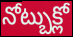
నోట్బుక్లో